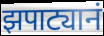
झपाट्यानं